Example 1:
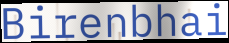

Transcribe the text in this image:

Birenbhai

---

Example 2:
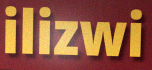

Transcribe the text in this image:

ilizwi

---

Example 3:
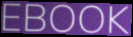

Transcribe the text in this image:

EBOOK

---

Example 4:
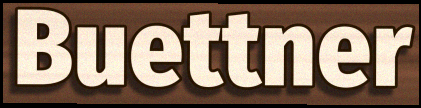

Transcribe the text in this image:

Buettner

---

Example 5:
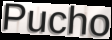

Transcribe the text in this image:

Pucho